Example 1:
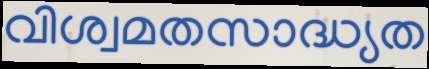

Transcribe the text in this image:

വിശ്വമതസാദ്ധ്യത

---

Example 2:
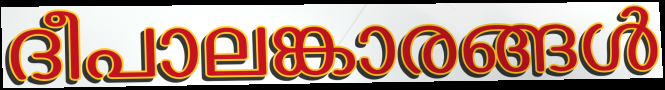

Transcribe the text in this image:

ദീപാലങ്കാരങ്ങൾ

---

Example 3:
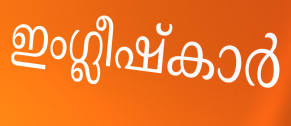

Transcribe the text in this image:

ഇംഗ്ലീഷ്കാർ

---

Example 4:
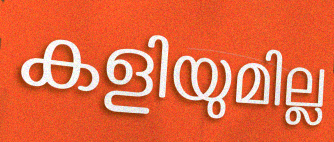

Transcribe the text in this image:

കളിയുമില്ല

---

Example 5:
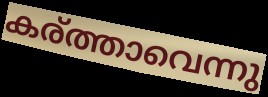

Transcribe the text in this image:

കര്ത്താവെന്നു